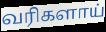
வரிகளாய்